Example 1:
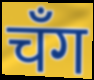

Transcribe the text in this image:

चँग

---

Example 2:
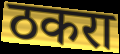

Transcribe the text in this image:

ठकरा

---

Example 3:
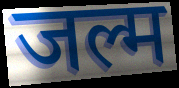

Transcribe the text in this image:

जल्म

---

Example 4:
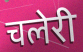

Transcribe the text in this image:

चलेरी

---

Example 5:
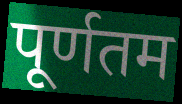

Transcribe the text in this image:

पूर्णतम